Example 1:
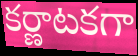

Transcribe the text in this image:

కర్ణాటకగా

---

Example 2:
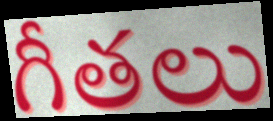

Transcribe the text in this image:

గీతలు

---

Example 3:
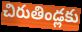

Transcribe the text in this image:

చిరుతిండ్లకు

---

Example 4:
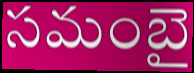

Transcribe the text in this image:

సమంబై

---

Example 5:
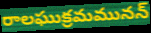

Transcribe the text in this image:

రాలఘుక్రమమునన్